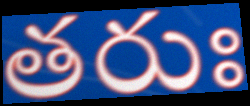
తరుః